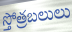
స్తోత్రబలులు